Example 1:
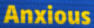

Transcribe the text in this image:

Anxious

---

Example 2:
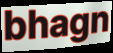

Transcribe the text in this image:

bhagn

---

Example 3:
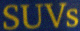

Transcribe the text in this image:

SUVs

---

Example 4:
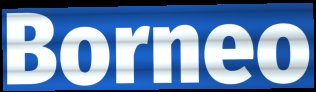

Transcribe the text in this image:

Borneo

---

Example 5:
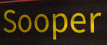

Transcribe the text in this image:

Sooper